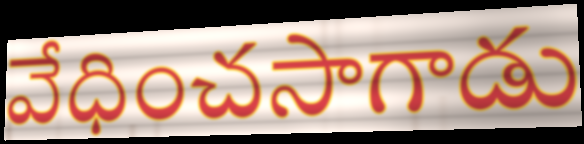
వేధించసాగాడు